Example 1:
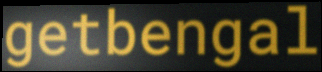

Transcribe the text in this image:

getbengal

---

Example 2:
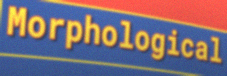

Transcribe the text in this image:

Morphological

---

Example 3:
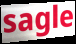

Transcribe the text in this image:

sagle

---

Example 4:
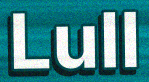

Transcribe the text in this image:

Lull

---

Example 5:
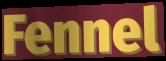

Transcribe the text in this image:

Fennel